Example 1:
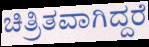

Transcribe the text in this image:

ಚಿತ್ರಿತವಾಗಿದ್ದರೆ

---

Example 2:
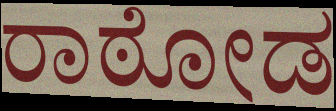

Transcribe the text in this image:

ರಾಠೋಡ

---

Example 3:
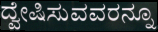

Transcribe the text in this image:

ದ್ವೇಷಿಸುವವರನ್ನೂ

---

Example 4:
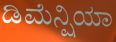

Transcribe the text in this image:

ಡಿಮೆನ್ಷಿಯಾ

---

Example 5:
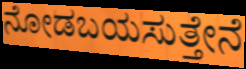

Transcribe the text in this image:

ನೋಡಬಯಸುತ್ತೇನೆ